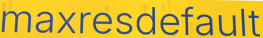
maxresdefault